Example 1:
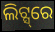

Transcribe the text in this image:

ଲିଟ୍ସ୍‌ରେ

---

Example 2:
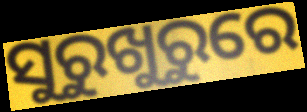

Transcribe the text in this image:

ସୁରୁଖୁରୁରେ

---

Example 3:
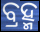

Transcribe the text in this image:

ବ୍ରହ୍ମ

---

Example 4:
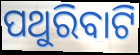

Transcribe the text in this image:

ପଥୁରିବାଟି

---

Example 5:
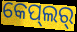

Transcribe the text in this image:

କେପ୍‌ଲର୍